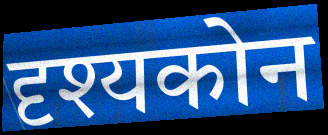
दृश्‍यकोन